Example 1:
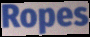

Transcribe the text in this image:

Ropes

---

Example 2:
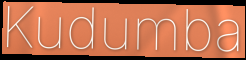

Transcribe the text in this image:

Kudumba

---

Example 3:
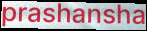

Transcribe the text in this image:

prashansha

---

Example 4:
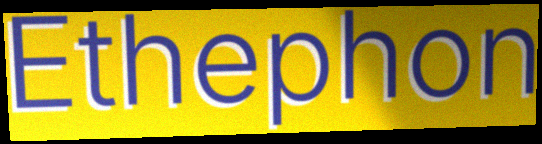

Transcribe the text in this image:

Ethephon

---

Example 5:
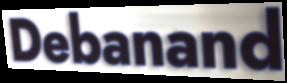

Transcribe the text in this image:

Debanand